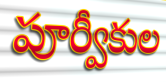
పూర్వీకుల